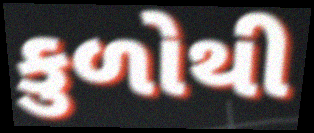
કુળોથી